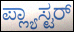
ಪ್ಲ್ಯಾಸ್ಟರ್